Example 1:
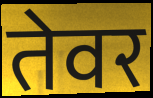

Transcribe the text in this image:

तेवर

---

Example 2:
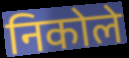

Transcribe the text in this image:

निकोले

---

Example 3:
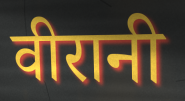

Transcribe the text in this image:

वीरानी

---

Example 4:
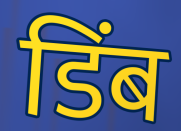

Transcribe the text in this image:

डिंब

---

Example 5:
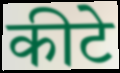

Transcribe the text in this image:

कीटे